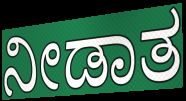
ನೀಡಾತ